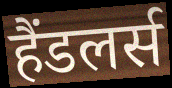
हैंडलर्स